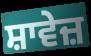
ਸ਼ਾਵੇਜ਼